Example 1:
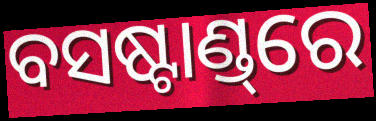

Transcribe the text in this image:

ବସଷ୍ଟାଣ୍ଡ୍‌ରେ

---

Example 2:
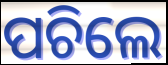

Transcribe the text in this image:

ପଚିଲେ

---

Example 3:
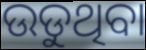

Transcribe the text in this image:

ଉଡୁଥିବା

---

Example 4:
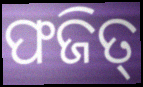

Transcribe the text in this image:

ଫଜିତ୍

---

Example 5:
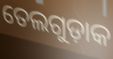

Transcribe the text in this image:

ତେଲଗୁଡ଼ାକ